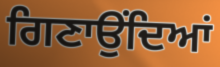
ਗਿਣਾਉਂਦਿਆਂ